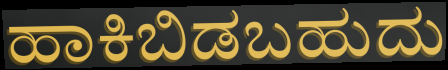
ಹಾಕಿಬಿಡಬಹುದು